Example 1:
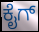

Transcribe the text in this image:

ಕೈಗ್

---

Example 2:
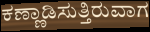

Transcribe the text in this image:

ಕಣ್ಣಾಡಿಸುತ್ತಿರುವಾಗ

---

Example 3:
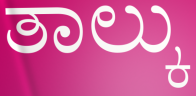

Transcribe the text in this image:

ತಾಲ್ಕು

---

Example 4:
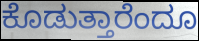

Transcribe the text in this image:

ಕೊಡುತ್ತಾರೆಂದೂ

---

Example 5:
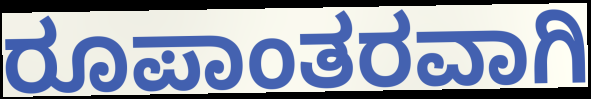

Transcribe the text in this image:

ರೂಪಾಂತರವಾಗಿ